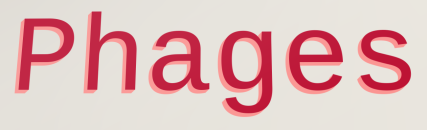
Phages